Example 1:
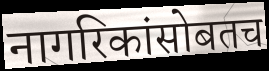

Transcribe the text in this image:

नागरिकांसोबतच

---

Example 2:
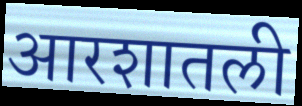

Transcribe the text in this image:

आरशातली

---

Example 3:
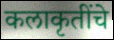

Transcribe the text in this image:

कलाकृतींचे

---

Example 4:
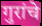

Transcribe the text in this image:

गुरांचे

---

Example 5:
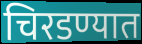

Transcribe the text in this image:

चिरडण्यात